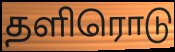
தளிரொடு